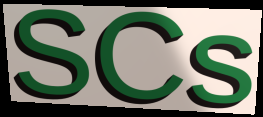
SCs